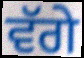
ਵੱਗੇ